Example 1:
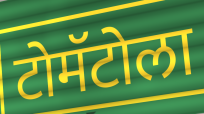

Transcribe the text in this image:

टोमॅटोला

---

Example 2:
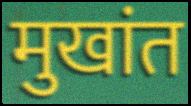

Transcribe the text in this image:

मुखांत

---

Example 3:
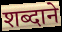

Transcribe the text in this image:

शब्दाने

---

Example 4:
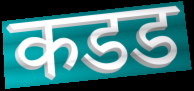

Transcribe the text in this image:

कडड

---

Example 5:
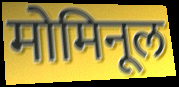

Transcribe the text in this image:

मोमिनूल